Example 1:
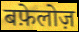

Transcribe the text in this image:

बफ़ेलोज़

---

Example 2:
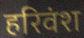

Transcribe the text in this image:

हरिवंश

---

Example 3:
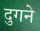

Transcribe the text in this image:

दुगने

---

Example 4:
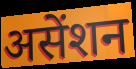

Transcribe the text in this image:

असेंशन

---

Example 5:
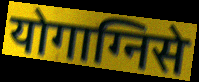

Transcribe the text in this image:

योगाग्निसे